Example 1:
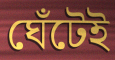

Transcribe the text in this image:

ঘেঁটেই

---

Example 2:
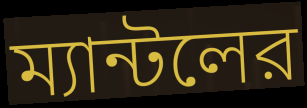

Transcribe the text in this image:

ম্যান্টলের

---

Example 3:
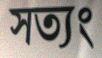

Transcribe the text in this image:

সত্যং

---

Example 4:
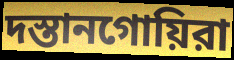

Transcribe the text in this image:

দস্তানগোয়িরা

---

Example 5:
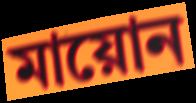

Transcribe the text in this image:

মায়োন